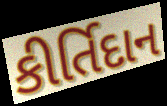
કીર્તિદાન